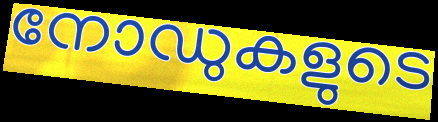
നോഡുകളുടെ